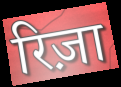
रिज़ा